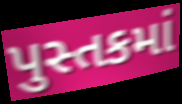
પુસ્તકમાં